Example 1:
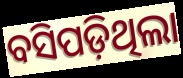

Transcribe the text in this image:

ବସିପଡ଼ିଥିଲା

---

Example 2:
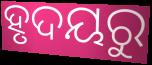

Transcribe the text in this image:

ହୃଦୟରୁ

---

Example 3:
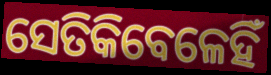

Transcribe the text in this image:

ସେତିକିବେଳେହିଁ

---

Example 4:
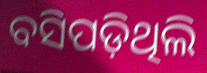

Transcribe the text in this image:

ବସିପଡ଼ିଥିଲି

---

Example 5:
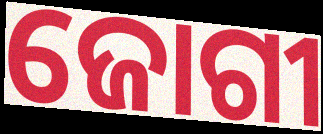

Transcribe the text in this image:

ଜୋଗୀ